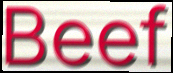
Beef